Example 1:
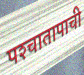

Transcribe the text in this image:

पश्चातापाची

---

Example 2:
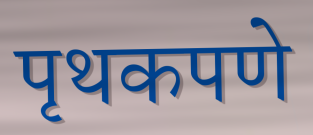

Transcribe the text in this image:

पृथकपणे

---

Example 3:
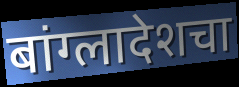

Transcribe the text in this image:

बांग्लादेशचा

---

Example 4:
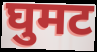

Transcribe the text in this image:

घुमट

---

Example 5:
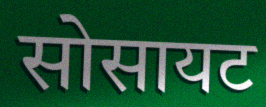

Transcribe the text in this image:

सोसायट